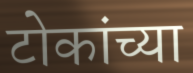
टोकांच्या